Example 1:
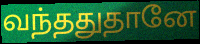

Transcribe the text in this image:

வந்ததுதானே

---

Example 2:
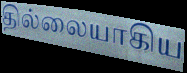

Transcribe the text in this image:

தில்லையாகிய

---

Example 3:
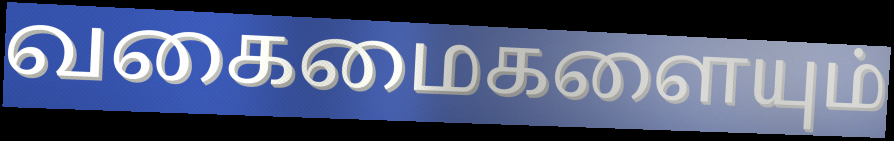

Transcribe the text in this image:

வகைமைகளையும்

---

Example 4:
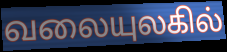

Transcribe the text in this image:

வலையுலகில்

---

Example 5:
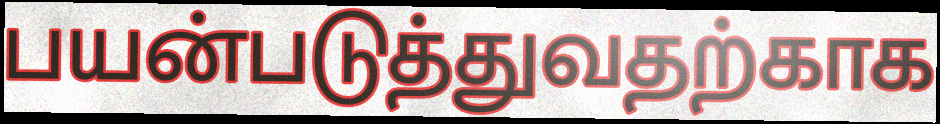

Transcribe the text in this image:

பயன்படுத்துவதற்காக